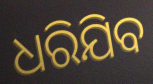
ଧରିଯିବ